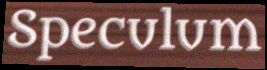
Speculum